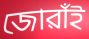
জোৱাঁই